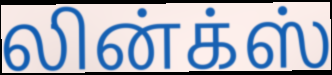
லின்க்ஸ்